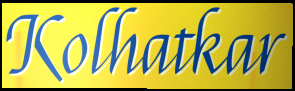
Kolhatkar